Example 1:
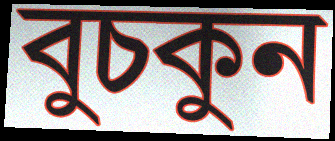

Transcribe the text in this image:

বুচকুন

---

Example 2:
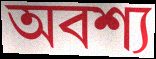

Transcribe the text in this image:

অবশ্য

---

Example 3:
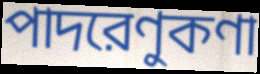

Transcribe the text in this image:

পাদরেণুকণা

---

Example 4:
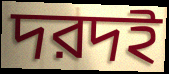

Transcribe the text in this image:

দরদই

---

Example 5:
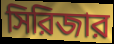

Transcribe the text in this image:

সিরিজার